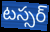
టస్సర్